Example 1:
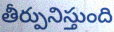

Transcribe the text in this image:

తీర్పునిస్తుంది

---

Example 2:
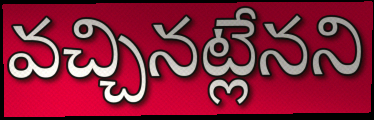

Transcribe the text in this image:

వచ్చినట్లేనని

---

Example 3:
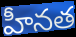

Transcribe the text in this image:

హీనత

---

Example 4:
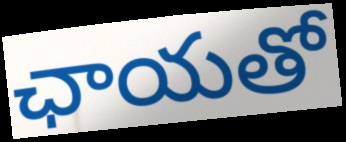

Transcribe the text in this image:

ఛాయతో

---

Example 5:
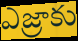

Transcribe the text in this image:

ఎజ్రాకు